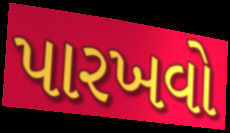
પારખવો